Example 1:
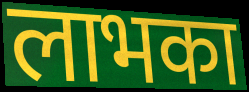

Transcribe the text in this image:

लाभका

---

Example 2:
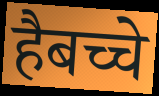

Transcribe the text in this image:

हैबच्चे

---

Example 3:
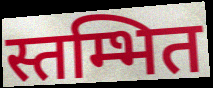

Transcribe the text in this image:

स्तम्भित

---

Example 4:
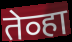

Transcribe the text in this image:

तेव्हा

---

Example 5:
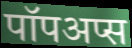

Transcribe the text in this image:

पॉपअप्स